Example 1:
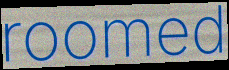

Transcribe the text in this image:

roomed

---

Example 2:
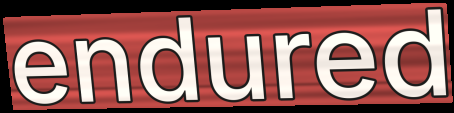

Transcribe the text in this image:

endured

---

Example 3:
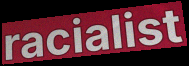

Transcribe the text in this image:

racialist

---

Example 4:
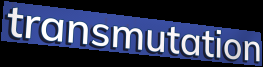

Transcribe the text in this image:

transmutation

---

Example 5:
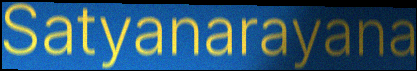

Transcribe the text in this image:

Satyanarayana